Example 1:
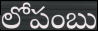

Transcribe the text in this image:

లోపంబు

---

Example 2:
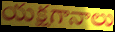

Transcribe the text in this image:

యక్షగానాలు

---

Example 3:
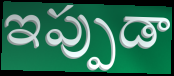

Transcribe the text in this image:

ఇప్పుడా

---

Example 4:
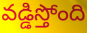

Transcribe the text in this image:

వడ్డిస్తోంది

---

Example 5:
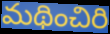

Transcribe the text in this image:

మథించిరి